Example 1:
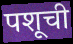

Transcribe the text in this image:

पशूची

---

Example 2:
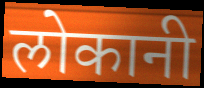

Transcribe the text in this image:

लोकानी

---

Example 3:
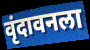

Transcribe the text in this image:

वृंदावनला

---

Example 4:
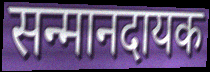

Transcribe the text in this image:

सन्मानदायक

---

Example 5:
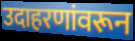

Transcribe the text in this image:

उदाहरणांवरून